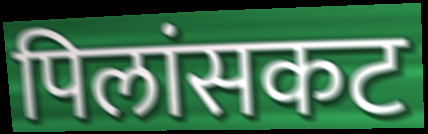
पिलांसकट